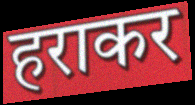
हराकर